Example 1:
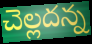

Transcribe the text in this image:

చెల్లదన్న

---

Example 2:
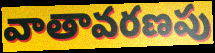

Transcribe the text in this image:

వాతావరణపు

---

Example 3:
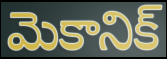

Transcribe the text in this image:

మెకానిక్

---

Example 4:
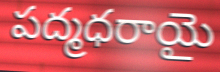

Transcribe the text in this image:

పద్మధరాయై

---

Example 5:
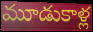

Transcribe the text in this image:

మూడుకాళ్ల